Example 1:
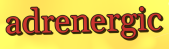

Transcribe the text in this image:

adrenergic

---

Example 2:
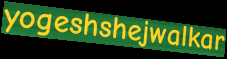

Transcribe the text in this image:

yogeshshejwalkar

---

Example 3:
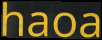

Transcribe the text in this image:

haoa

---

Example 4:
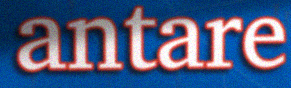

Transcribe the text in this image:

antare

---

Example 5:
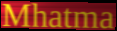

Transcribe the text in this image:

Mhatma